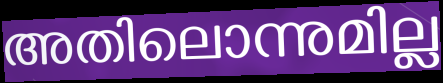
അതിലൊന്നുമില്ല